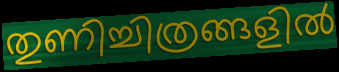
തുണിച്ചിത്രങ്ങളിൽ